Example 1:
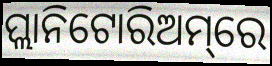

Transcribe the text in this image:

ପ୍ଲାନିଟୋରିଅମ୍‌ରେ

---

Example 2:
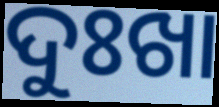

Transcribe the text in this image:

ଦୁଃଖା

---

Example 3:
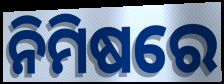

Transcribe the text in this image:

ନିମିଷରେ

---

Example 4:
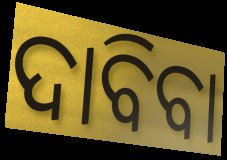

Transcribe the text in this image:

ଦାବିବା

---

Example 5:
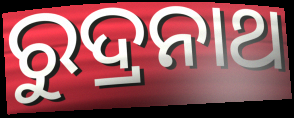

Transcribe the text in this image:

ରୁଦ୍ରନାଥ